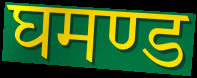
घमण्ड